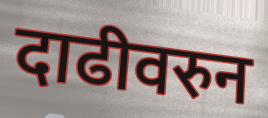
दाढीवरुन